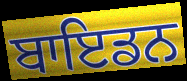
ਬਾਇਡਨ